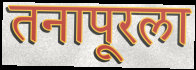
तनापूरला